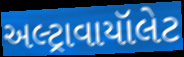
અલ્ટ્રાવાયૉલેટ